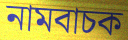
নামবাচক